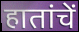
हातांचें